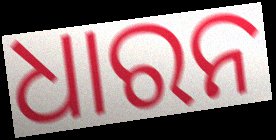
ଧାରନ